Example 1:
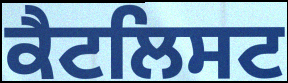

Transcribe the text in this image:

ਕੈਟਲਿਸਟ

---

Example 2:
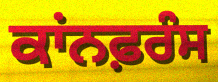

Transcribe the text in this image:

ਕਾਂਨਫ਼ਰੰਸ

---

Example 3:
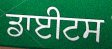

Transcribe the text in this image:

ਡਾਈਟਸ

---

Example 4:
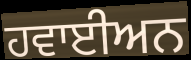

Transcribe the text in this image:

ਹਵਾਈਅਨ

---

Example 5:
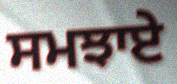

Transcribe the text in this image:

ਸਮਝਾਏ